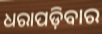
ଧରାପଡ଼ିବାର